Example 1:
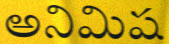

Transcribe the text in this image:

అనిమిష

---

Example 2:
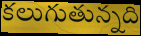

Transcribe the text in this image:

కలుగుతున్నది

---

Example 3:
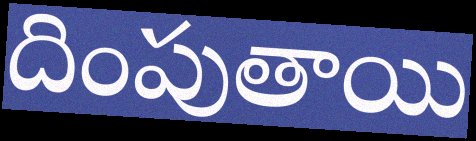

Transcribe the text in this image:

దింపుతాయి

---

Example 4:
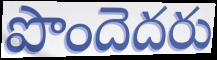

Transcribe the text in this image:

పొందెదరు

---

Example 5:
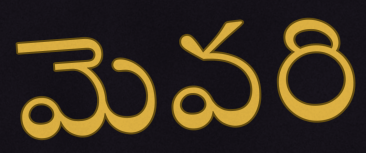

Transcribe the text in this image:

మెవరి